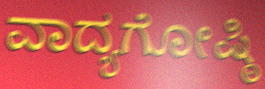
ವಾದ್ಯಗೋಷ್ಠಿ